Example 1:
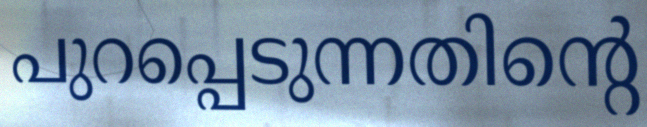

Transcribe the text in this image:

പുറപ്പെടുന്നതിന്റെ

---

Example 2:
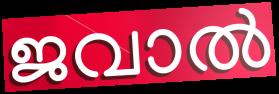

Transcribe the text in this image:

ജവാൽ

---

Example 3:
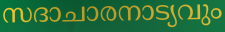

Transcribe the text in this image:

സദാചാരനാട്യവും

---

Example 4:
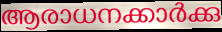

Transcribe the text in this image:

ആരാധനക്കാർക്കു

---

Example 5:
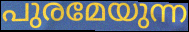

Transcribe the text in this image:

പുരമേയുന്ന